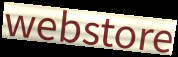
webstore